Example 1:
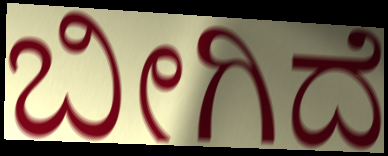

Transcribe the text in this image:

ಬೀಗಿದೆ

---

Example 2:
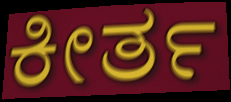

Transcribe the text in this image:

ಕೀರ್ತ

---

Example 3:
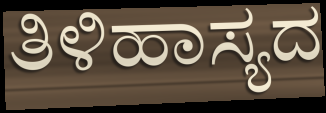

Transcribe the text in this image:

ತಿಳಿಹಾಸ್ಯದ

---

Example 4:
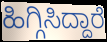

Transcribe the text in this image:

ಹಿಗ್ಗಿಸಿದ್ದಾರೆ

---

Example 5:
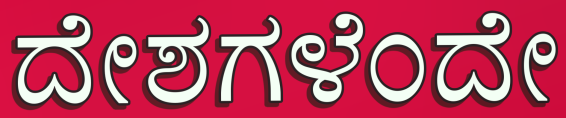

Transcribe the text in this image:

ದೇಶಗಳೆಂದೇ